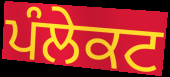
ਪੰਲੇਕਟ